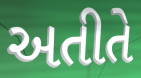
અતીતે